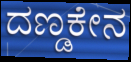
ದಣ್ಡಕೇನ